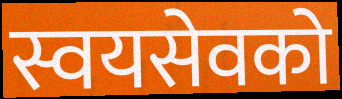
स्वयसेवको